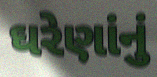
ઘરેણાંનું